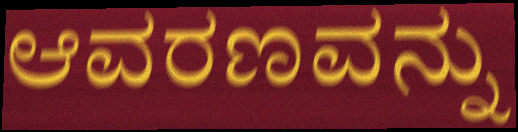
ಆವರಣವನ್ನು